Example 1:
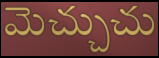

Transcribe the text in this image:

మెచ్చుచు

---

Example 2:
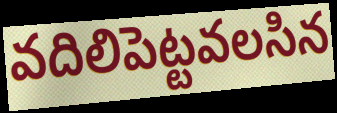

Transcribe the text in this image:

వదిలిపెట్టవలసిన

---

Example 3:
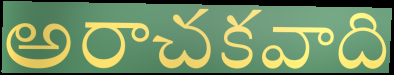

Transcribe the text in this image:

అరాచకవాది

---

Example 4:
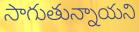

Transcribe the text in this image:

సాగుతున్నాయని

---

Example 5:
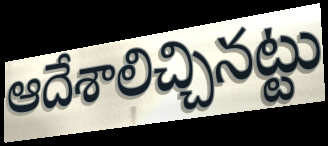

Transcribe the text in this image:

ఆదేశాలిచ్చినట్టు